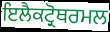
ਇਲੈਕਟ੍ਰੋਥਰਮਲ